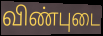
விண்புடை